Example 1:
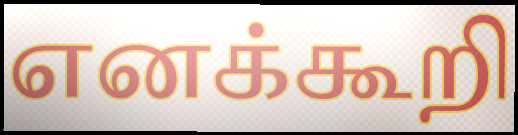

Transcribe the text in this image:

எனக்கூறி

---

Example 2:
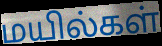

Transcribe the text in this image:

மயில்கள்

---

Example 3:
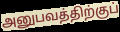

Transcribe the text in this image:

அனுபவத்திற்குப்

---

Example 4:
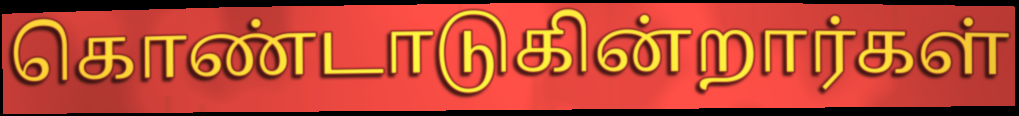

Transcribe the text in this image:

கொண்டாடுகின்றார்கள்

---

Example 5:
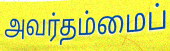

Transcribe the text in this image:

அவர்தம்மைப்